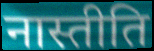
नास्तीति